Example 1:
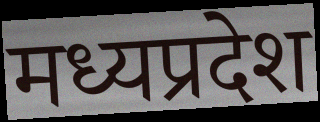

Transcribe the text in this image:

मध्यप्रदेश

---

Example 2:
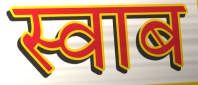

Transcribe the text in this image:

स्वाब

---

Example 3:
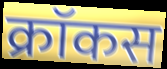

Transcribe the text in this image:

क्रॉकस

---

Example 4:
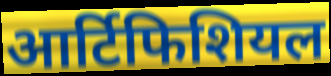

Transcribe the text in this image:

आर्टिफिशियल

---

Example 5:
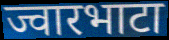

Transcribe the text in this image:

ज्वारभाटा